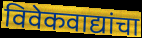
विवेकवाद्यांचा